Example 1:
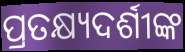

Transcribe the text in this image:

ପ୍ରତକ୍ଷ୍ୟଦର୍ଶୀଙ୍କ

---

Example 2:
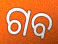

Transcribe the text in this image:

ଗବ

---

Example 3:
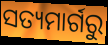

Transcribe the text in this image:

ସତ୍ୟମାର୍ଗରୁ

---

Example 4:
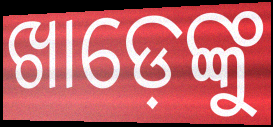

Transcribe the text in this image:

ଖାଡ଼େଙ୍କୁ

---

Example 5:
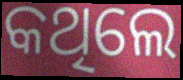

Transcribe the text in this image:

କଥିଲେ